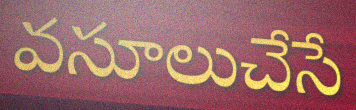
వసూలుచేసే